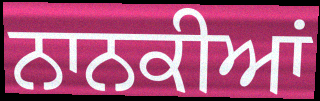
ਨਾਨਕੀਆਂ